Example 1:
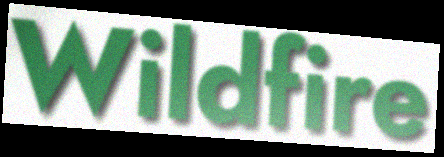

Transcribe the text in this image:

Wildfire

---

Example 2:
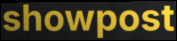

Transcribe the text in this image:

showpost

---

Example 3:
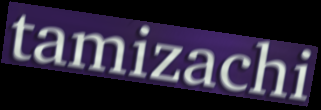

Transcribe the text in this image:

tamizachi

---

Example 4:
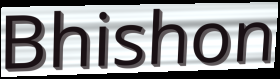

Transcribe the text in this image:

Bhishon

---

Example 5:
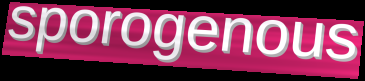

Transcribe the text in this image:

sporogenous